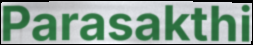
Parasakthi